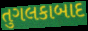
તુગલકાબાદ